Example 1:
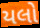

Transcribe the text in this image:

યલો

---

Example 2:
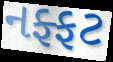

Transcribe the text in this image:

નફ્ફટ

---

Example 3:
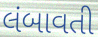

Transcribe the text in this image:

લંબાવતી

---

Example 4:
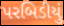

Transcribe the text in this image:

પરબિડીયું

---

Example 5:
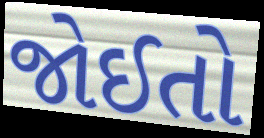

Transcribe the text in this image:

જોઈતો